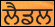
ਲੈਡਲ